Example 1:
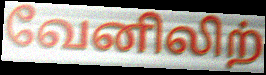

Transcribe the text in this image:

வேனிலிற்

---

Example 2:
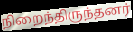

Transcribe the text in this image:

நிறைந்திருந்தனர்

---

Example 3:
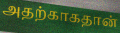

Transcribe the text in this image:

அதற்காகதான்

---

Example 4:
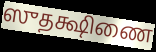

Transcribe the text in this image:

ஸுதக்ஷிணை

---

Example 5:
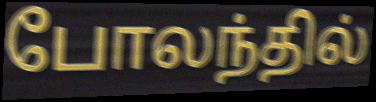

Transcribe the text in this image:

போலந்தில்